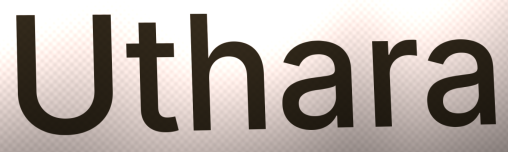
Uthara